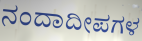
ನಂದಾದೀಪಗಳ